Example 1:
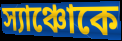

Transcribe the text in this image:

স্যাঞ্চোকে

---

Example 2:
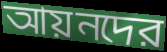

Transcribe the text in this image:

আয়নদের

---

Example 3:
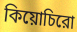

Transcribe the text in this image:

কিয়োচিরো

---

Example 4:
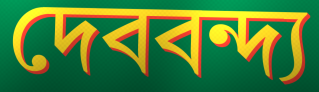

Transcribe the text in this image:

দেববন্দ্য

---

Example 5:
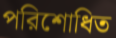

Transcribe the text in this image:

পরিশোধিত